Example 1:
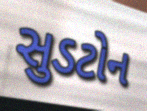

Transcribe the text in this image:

સુડટોન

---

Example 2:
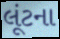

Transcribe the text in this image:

લૂંટના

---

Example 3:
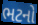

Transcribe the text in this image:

ભટનો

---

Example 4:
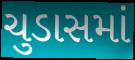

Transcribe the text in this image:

ચુડાસમાં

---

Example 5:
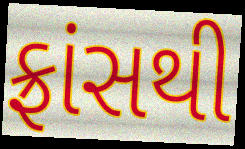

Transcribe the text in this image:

ફ્રાંસથી